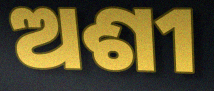
ଅଶୀ